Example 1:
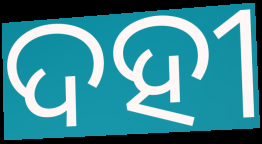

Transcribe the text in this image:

ଦହୀ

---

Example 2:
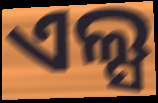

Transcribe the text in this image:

ଏଲ୍ସ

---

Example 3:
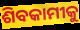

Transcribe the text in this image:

ଶିବକାମୀକୁ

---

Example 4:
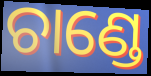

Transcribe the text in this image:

ଚାଣ୍ଡେ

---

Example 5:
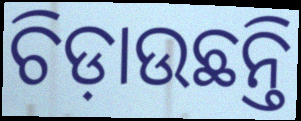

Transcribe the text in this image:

ଚିଡ଼ାଉଛନ୍ତି